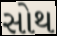
સોથ